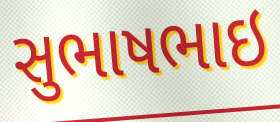
સુભાષભાઇ